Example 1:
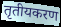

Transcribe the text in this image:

तृतीयकरण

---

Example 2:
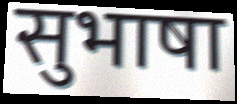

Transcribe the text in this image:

सुभाषा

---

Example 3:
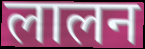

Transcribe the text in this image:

लालन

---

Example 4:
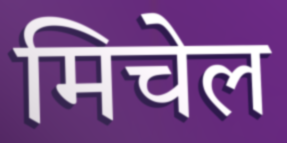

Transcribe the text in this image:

मिचेल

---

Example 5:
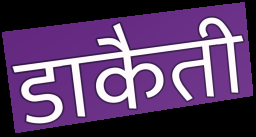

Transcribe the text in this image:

डाकैती